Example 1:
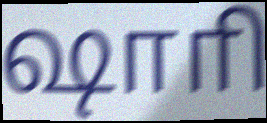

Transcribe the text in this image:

ஷாரி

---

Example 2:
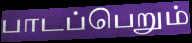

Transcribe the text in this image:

பாடப்பெறும்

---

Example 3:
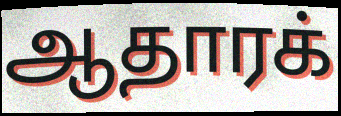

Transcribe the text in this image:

ஆதாரக்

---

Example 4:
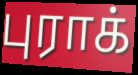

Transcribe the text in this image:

புராக்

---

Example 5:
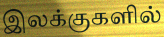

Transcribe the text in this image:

இலக்குகளில்